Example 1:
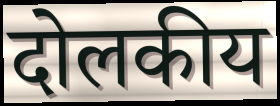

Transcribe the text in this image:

दोलकीय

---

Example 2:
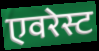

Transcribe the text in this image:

एवरेस्ट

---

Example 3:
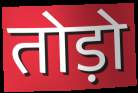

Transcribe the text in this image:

तोड़ो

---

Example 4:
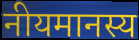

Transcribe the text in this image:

नीयमानस्य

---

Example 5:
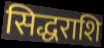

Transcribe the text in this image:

सिद्धराशि